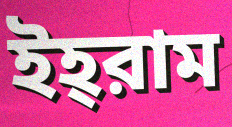
ইহ্‌রাম